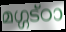
മഗ്ഗട്ഠാ